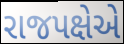
રાજપક્ષેએ